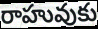
రాహువుకు